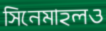
সিনেমাহলও